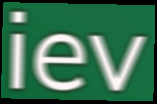
iev